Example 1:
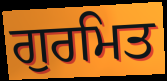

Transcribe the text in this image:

ਗੁਰਮਿਤ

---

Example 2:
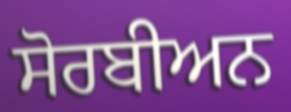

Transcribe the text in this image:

ਸੋਰਬੀਅਨ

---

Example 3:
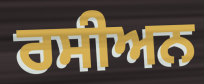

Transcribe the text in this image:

ਰਸੀਅਨ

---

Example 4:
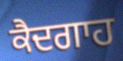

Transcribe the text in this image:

ਕੈਦਗਾਹ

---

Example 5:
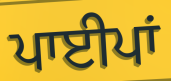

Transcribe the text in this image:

ਪਾਈਪਾਂ